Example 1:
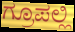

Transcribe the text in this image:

ಗ್ರೂಪಲ್ಲಿ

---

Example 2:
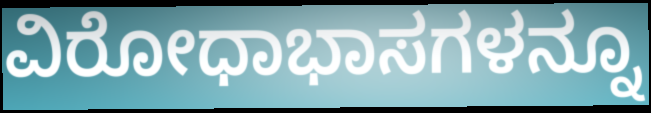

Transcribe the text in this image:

ವಿರೋಧಾಭಾಸಗಳನ್ನೂ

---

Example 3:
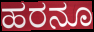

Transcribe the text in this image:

ಹರನೂ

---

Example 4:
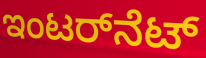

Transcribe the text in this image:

ಇಂಟರ್‌ನೆಟ್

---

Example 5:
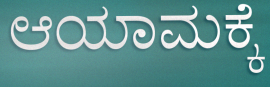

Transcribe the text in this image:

ಆಯಾಮಕ್ಕೆ